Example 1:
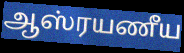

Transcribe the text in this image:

ஆஸ்ரயணீய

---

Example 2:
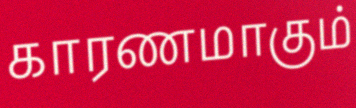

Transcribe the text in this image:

காரணமாகும்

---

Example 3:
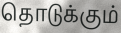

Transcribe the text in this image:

தொடுக்கும்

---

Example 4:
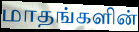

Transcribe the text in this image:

மாதங்களின்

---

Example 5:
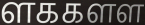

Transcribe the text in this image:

ளககளள